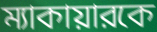
ম্যাকায়ারকে